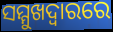
ସମ୍ମୁଖଦ୍ୱାରରେ